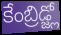
కేంబ్రిడ్జ్లో